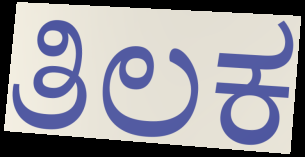
ತಿಲಕ